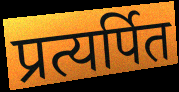
प्रत्यर्पित